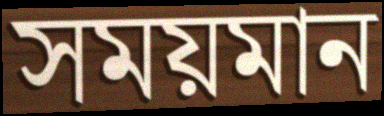
সময়মান